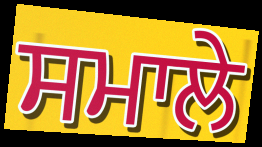
ਸਮਾਲੇ